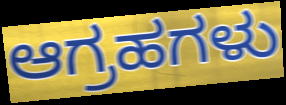
ಆಗ್ರಹಗಳು